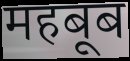
महबूब